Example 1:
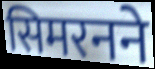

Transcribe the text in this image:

सिमरनने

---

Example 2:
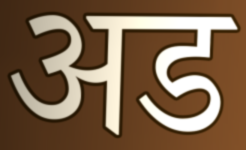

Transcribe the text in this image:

अड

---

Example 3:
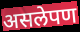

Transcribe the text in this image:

असलेपण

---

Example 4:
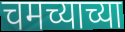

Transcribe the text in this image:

चमच्याच्या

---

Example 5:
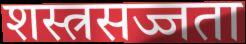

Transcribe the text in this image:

शस्त्रसज्जता